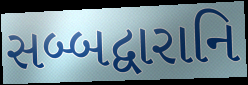
સબ્બદ્વારાનિ